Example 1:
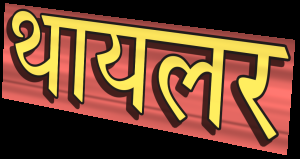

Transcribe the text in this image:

थायलर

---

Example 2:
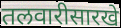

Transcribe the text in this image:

तलवारीसारखे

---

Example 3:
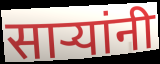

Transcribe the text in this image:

साऱ्यांनी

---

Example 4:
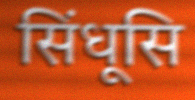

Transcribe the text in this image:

सिंधूसि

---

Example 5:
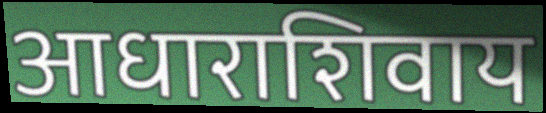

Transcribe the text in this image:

आधाराशिवाय